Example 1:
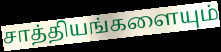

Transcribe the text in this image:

சாத்தியங்களையும்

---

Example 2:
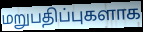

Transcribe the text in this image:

மறுபதிப்புகளாக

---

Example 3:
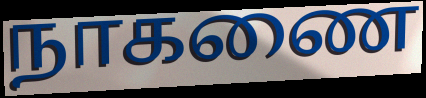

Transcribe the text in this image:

நாகணை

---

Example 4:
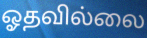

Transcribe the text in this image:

ஓதவில்லை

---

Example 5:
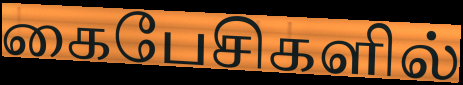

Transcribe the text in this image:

கைபேசிகளில்